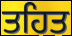
ਤਹਿਤ